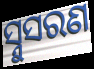
ସ୍ନୁସରଣ